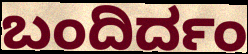
ಬಂದಿರ್ದಂ